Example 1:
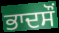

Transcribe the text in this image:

ਭਾਦਸੌਂ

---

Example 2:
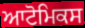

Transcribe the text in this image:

ਆਟੋਮਿਕਸ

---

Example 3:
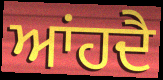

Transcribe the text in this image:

ਆਂਹਦੈ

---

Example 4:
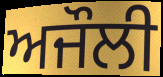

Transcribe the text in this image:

ਅਜੌਲੀ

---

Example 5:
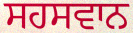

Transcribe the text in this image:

ਸਹਸਵਾਨ